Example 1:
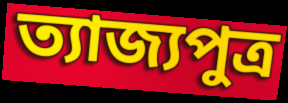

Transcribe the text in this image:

ত্যাজ্যপুত্র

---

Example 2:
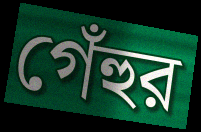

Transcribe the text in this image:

গেঁহুর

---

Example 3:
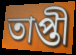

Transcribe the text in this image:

তাপ্তী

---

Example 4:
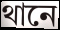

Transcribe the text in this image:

থানে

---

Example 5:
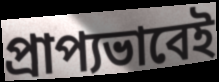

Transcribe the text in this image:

প্রাপ্যভাবেই